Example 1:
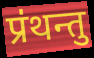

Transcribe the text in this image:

प्र॑थन्तु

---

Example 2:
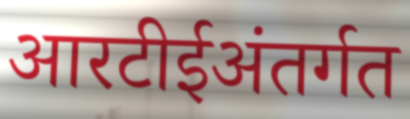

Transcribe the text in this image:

आरटीईअंतर्गत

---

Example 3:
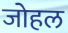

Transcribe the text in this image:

जोहल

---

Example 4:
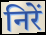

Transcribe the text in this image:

निरें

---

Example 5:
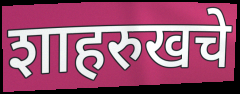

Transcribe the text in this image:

शाहरुखचे